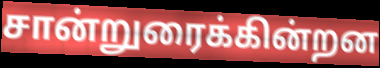
சான்றுரைக்கின்றன